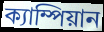
ক্যাম্পিয়ান